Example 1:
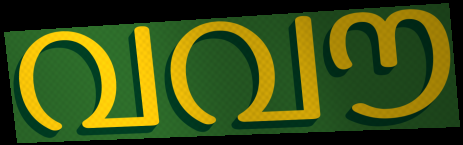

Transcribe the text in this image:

വവൗ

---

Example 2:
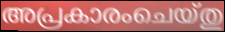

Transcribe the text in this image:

അപ്രകാരംചെയ്തു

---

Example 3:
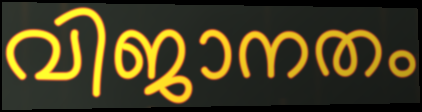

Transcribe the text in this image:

വിജാനതം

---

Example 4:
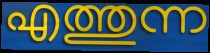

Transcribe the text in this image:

എത്തുന്ന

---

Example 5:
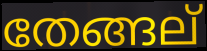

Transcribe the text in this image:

തേങ്ങല്